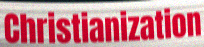
Christianization